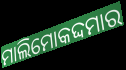
ମାଲିମୋକଦ୍ଦମାର